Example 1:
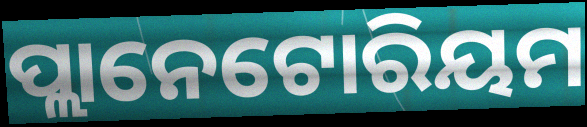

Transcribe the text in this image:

ପ୍ଲାନେଟୋରିୟମ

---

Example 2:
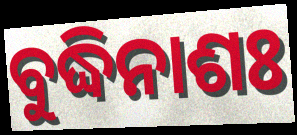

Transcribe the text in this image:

ବୁଦ୍ଧିନାଶଃ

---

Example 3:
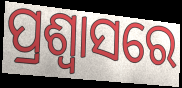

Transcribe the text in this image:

ପ୍ରଶ୍ଵାସରେ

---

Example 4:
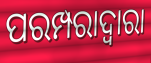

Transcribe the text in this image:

ପରମ୍ପରାଦ୍ବାରା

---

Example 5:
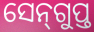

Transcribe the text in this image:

ସେନ୍‌ଗୁପ୍ତ